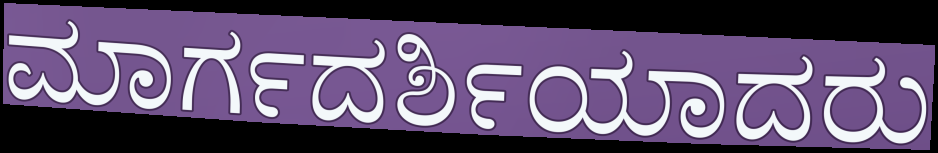
ಮಾರ್ಗದರ್ಶಿಯಾದರು